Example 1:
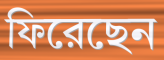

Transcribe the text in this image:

ফিরেছেন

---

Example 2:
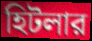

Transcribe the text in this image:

হিটলার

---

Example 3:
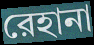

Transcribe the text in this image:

রেহানা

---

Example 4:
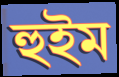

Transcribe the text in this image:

হুইম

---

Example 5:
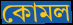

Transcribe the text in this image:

কোমল